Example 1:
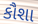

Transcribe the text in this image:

કૌશા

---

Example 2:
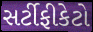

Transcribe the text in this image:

સર્ટીફીકેટો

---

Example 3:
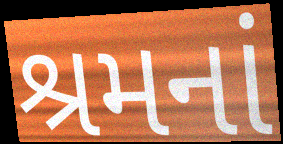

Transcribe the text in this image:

શ્રમનાં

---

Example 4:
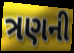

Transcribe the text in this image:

ત્રણની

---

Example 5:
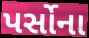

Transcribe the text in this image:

પર્સોના